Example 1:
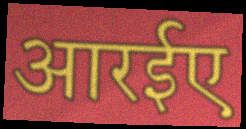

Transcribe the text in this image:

आरईए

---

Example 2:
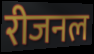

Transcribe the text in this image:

रीजनल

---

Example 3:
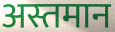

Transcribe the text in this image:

अस्तमान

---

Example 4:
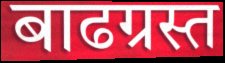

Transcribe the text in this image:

बाढग्रस्त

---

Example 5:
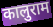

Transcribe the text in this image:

कालुराम